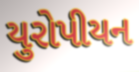
યુરોપીયન